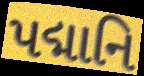
પદ્માનિ